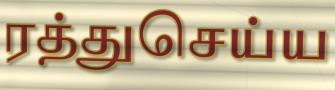
ரத்துசெய்ய